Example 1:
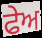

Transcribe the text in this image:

ਫੇਅ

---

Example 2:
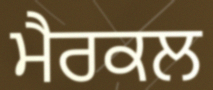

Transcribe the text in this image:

ਮੈਰਕਲ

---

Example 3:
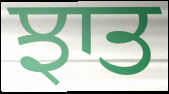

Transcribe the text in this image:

ਝਾਤ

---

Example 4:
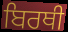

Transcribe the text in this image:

ਬਿਰਥੀ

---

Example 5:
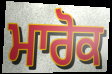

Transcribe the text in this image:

ਮਾਰੋਕ